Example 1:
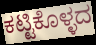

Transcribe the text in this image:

ಕಟ್ಟಿಕೊಳ್ಳದ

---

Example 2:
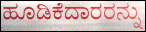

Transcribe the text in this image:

ಹೂಡಿಕೆದಾರರನ್ನು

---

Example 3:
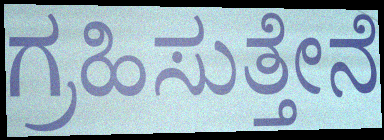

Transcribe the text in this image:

ಗ್ರಹಿಸುತ್ತೇನೆ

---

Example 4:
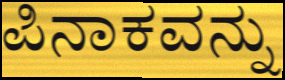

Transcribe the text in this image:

ಪಿನಾಕವನ್ನು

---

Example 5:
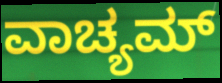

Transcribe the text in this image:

ವಾಚ್ಯಮ್